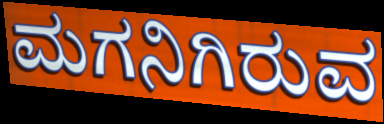
ಮಗನಿಗಿರುವ